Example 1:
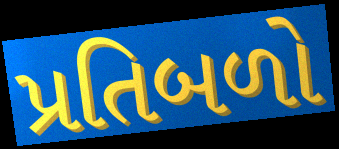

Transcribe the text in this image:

પ્રતિબળો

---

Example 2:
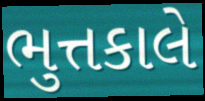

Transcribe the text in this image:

ભુત્તકાલે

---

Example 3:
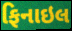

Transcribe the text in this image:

ફિનાઇલ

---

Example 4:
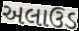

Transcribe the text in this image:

અલાઉડ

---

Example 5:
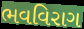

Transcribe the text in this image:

ભવવિરાગ